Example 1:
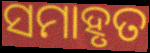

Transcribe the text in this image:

ସମାହୃତ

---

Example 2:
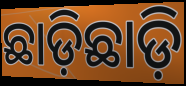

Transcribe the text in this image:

ଛାଡ଼ିଛାଡ଼ି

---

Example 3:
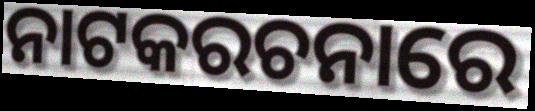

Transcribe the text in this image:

ନାଟକରଚନାରେ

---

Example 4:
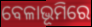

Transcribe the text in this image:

ବେଳାଭୂମିରେ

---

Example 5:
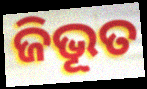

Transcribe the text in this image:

ଜିଭୂତ